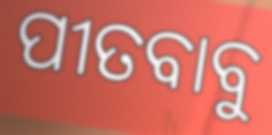
ପୀତବାବୁ